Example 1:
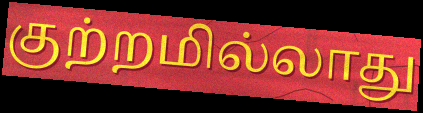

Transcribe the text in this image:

குற்றமில்லாது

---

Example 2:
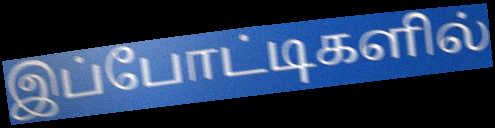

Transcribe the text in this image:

இப்போட்டிகளில்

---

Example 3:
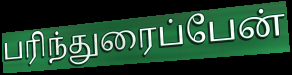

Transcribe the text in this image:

பரிந்துரைப்பேன்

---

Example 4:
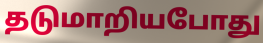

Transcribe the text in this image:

தடுமாறியபோது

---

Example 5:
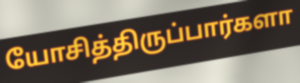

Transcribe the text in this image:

யோசித்திருப்பார்களா